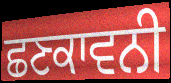
ਛਣਕਾਵਨੀ